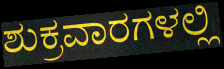
ಶುಕ್ರವಾರಗಳಲ್ಲಿ